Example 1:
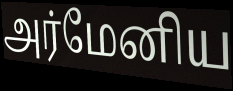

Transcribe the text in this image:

அர்மேனிய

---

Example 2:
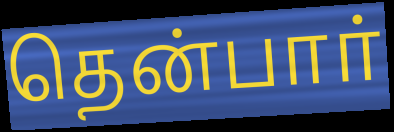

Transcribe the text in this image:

தென்பார்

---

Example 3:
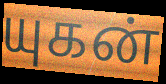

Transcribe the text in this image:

யுகன்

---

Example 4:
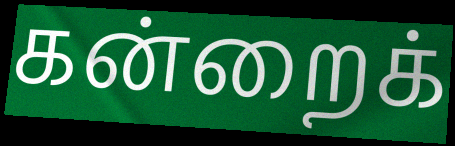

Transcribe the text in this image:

கன்றைக்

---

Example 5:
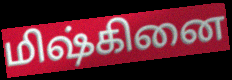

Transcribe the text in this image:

மிஷ்கினை